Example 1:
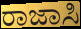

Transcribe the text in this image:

ರಾಜಾಸಿ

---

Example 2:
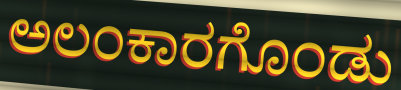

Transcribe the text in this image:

ಅಲಂಕಾರಗೊಂಡು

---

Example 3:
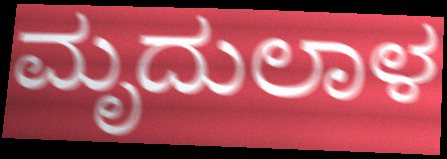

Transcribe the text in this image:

ಮೃದುಲಾಳ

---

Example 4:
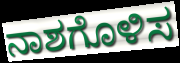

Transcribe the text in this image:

ನಾಶಗೊಳಿಸ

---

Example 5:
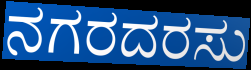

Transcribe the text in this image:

ನಗರದರಸು